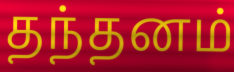
தந்தனம்